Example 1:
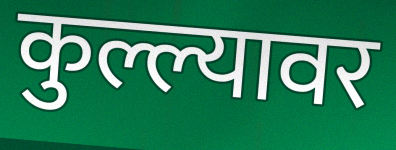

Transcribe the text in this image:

कुल्ल्यावर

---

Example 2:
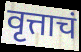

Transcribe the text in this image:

वृत्ताचं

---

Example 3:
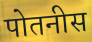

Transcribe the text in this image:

पोतनीस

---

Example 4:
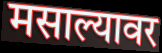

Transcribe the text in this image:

मसाल्यावर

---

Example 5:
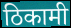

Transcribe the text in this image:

ठिकामी